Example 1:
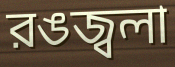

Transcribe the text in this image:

রঙজ্বলা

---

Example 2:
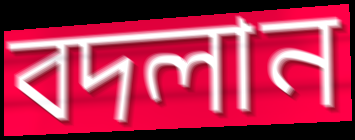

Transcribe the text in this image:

বদলান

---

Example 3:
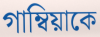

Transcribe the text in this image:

গাম্বিয়াকে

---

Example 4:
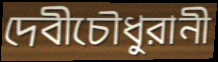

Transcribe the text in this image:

দেবীচৌধুরানী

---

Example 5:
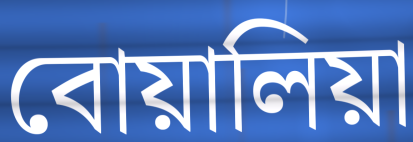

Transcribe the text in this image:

বোয়ালিয়া